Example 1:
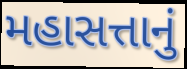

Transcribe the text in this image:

મહાસત્તાનું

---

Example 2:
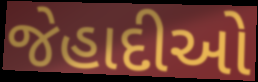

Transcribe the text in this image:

જેહાદીઓ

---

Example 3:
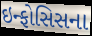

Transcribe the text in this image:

ઇન્ફોસિસના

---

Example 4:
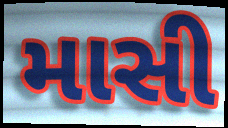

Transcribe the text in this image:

માસી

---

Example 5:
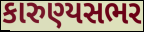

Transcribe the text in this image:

કારુણ્યસભર